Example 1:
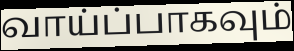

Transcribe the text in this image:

வாய்ப்பாகவும்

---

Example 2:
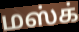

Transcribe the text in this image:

மஸ்க்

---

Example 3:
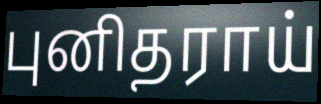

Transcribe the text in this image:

புனிதராய்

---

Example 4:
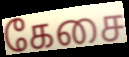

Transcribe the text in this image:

கேசை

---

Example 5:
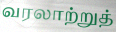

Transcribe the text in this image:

வரலாற்றுத்